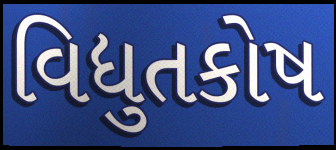
વિદ્યુતકોષ